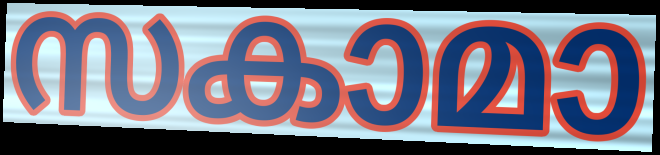
സകാമാ